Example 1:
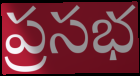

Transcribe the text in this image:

ప్రసభ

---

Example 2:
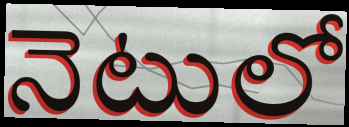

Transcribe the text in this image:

నెటులో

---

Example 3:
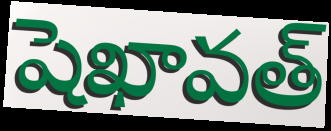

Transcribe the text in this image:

షెఖావత్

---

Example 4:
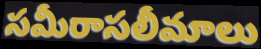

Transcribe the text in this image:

సమీరాసలీమాలు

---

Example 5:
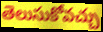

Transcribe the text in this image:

తెలుసుకోవచ్చు